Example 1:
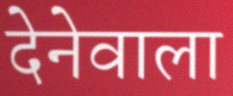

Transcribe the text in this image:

देनेवाला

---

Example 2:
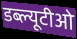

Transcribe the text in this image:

डब्ल्यूटीओ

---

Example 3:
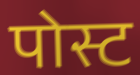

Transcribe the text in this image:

पोस्ट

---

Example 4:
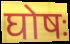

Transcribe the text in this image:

घोषः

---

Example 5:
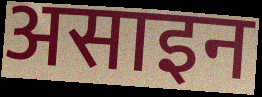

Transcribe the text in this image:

असाइन